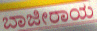
ಬಾಜೀರಾಯ